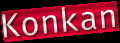
Konkan